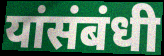
यांसंबंधी